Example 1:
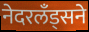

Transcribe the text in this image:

नेदरलँड्सने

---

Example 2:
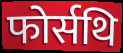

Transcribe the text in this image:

फोर्सथि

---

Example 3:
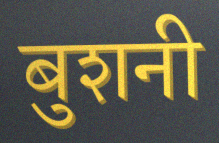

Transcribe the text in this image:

बुशनी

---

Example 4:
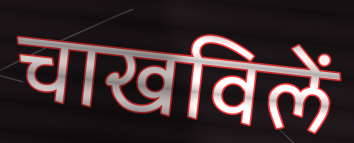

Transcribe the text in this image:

चाखविलें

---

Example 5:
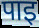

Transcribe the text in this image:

पाइ